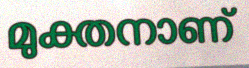
മുക്തനാണ്